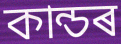
কান্ডৰ